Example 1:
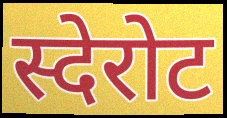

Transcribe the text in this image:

स्देरोट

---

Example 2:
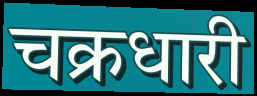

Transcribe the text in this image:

चक्रधारी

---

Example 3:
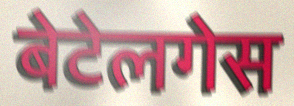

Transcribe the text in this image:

बेटेलगेस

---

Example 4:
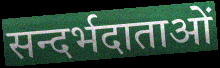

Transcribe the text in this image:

सन्दर्भदाताओं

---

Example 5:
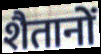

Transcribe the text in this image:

शैतानों